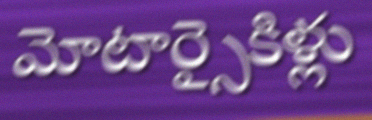
మోటార్సైకిళ్లు